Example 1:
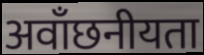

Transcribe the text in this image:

अवाँछनीयता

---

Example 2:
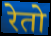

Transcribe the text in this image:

रेतो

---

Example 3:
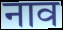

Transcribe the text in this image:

नाव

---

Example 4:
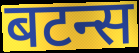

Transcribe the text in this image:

बटन्स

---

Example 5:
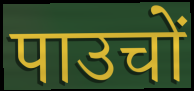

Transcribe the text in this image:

पाउचों